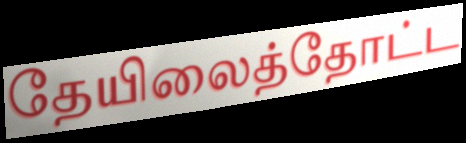
தேயிலைத்தோட்ட